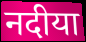
नदीया